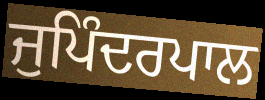
ਜੁਪਿੰਦਰਪਾਲ